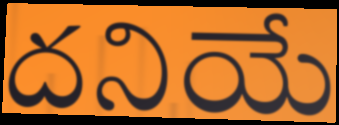
దనియే